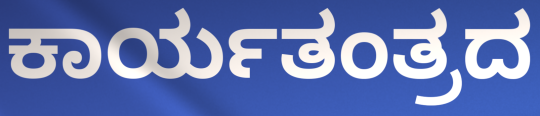
ಕಾರ್ಯತಂತ್ರದ